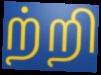
ற்றி